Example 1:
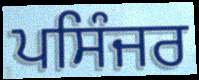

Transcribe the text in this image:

ਪਸਿੰਜਰ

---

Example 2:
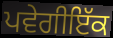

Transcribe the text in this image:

ਪਵੇਗੀਇੱਕ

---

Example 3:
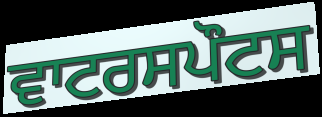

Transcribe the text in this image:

ਵਾਟਰਸਪੌਟਸ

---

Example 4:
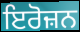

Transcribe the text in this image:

ਇਰੋਜ਼ਨ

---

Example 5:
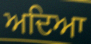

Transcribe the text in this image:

ਅਦਿਆ